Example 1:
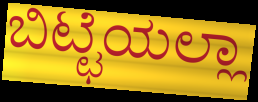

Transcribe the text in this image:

ಬಿಟ್ಟೆಯಲ್ಲಾ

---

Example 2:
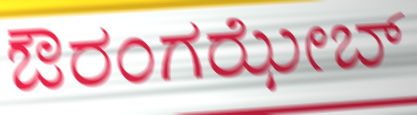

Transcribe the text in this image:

ಔರಂಗಝೇಬ್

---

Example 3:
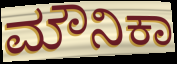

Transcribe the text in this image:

ಮೌನಿಕಾ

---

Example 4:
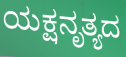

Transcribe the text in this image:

ಯಕ್ಷನೃತ್ಯದ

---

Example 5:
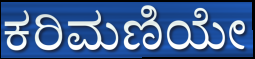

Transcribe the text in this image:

ಕರಿಮಣಿಯೇ